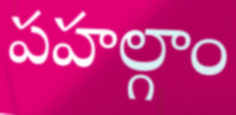
పహల్గాం